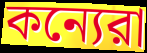
কন্যেরা